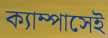
ক্যাম্পাসেই